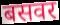
बसवर